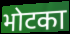
भोटका